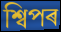
শ্বিপৰ